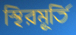
স্থিরমূর্তি